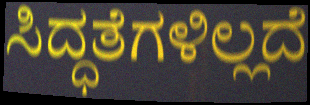
ಸಿದ್ಧತೆಗಳಿಲ್ಲದೆ